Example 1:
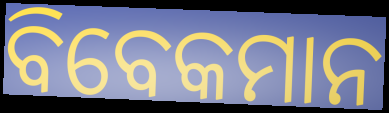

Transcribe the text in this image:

ବିବେକମାନ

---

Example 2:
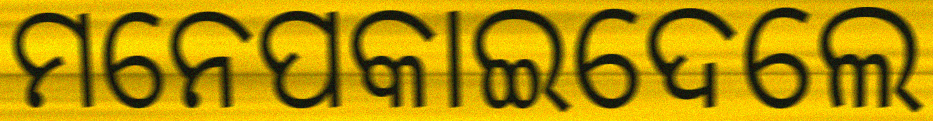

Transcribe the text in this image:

ମନେପକାଇଦେଲେ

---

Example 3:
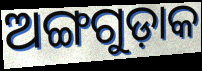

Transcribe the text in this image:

ଅଙ୍ଗଗୁଡ଼ାକ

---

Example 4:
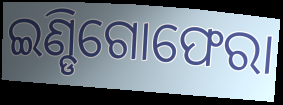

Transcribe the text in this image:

ଇଣ୍ଡିଗୋଫେରା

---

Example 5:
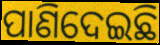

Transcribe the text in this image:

ପାଣିଦେଇଛି